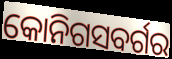
କୋନିଗସବର୍ଗର